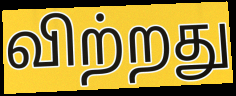
விற்றது